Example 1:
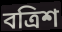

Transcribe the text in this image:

বত্রিশ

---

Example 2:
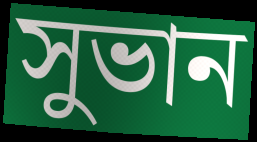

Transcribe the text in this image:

সুভান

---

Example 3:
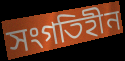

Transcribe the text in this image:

সংগতিহীন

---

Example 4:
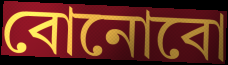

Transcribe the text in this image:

বোনোবো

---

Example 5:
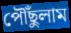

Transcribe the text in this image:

পৌঁছুলাম